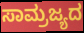
ಸಾಮ್ರಜ್ಯದ